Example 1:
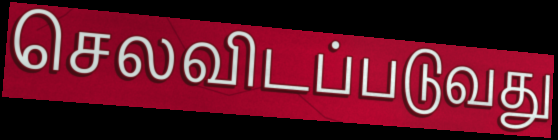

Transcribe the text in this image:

செலவிடப்படுவது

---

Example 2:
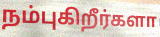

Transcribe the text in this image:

நம்புகிறீர்களா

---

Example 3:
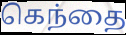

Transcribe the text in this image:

கெந்தை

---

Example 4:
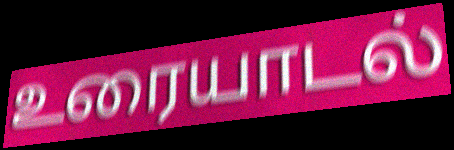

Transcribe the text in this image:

உரையாடல்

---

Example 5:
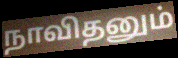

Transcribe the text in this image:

நாவிதனும்